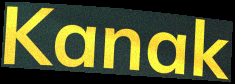
Kanak